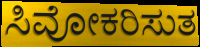
ಸಿವೋಕರಿಸುತ